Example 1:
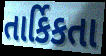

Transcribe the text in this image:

તાર્કિકતા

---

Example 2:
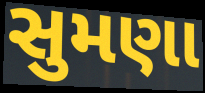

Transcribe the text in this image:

સુમણા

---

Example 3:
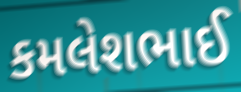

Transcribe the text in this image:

કમલેશભાઈ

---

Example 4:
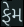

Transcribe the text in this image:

ફેમ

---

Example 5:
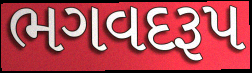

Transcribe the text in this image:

ભગવદરૂપ